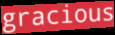
gracious